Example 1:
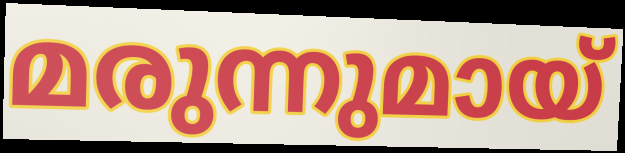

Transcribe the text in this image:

മരുന്നുമായ്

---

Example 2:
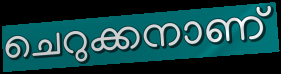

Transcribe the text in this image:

ചെറുക്കനാണ്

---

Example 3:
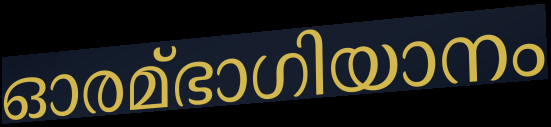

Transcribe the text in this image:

ഓരമ്ഭാഗിയാനം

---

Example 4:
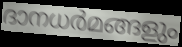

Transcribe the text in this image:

ദാനധർമങ്ങളും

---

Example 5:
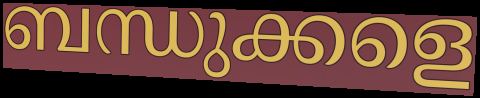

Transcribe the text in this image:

ബന്ധുക്കളെ